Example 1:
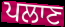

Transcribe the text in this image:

ਪਲਾਣ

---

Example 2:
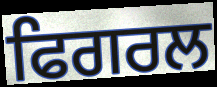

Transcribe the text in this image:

ਫਿਗਰਲ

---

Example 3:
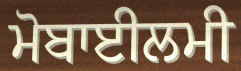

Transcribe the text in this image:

ਮੋਬਾਈਲਮੀ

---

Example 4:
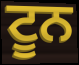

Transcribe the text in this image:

ਟੂਨ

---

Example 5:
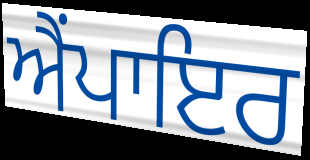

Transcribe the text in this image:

ਐੰਪਾਇਰ